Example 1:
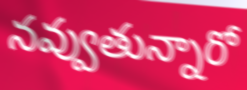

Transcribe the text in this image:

నవ్వుతున్నారో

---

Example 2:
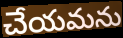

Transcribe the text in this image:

చేయమను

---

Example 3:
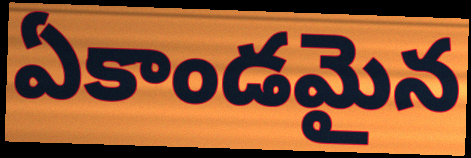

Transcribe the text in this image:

ఏకాండమైన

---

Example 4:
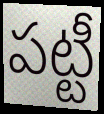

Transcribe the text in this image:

పట్టీ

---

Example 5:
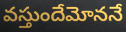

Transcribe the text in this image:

వస్తుందేమోననే